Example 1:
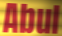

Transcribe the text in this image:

Abul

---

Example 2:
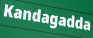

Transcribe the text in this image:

Kandagadda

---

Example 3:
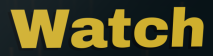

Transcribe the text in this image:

Watch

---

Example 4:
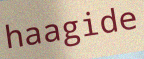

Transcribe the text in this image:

haagide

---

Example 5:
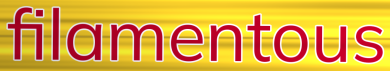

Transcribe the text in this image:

filamentous